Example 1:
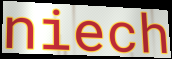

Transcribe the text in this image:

niech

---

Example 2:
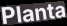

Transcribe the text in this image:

Planta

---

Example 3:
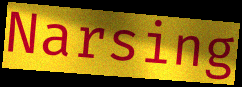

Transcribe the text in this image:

Narsing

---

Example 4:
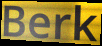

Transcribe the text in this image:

Berk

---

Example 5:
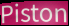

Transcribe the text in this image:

Piston